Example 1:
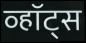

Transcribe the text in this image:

व्हॉट्स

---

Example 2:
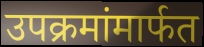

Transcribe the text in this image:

उपक्रमांमार्फत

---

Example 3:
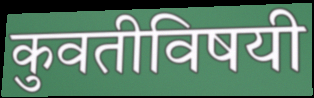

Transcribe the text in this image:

कुवतीविषयी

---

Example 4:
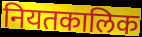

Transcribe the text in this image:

नियतकालिक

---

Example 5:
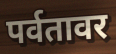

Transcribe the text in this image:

पर्वतावर